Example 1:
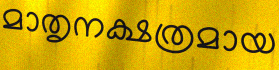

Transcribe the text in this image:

മാതൃനക്ഷത്രമായ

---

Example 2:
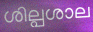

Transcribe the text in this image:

ശില്പശാല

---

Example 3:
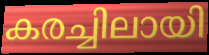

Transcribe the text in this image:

കരച്ചിലായി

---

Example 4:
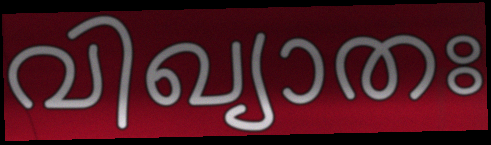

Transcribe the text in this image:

വിഖ്യാതഃ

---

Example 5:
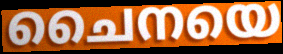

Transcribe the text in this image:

ചൈനയെ